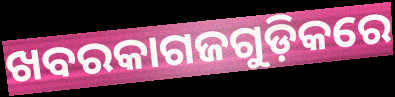
ଖବରକାଗଜଗୁଡ଼ିକରେ